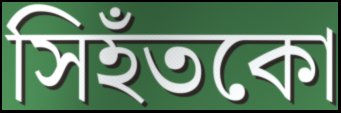
সিহঁতকো